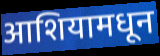
आशियामधून